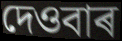
দেওবাৰ